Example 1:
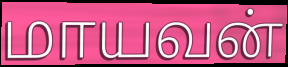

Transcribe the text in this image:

மாயவன்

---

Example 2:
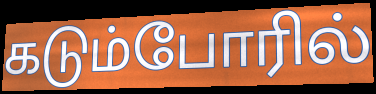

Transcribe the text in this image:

கடும்போரில்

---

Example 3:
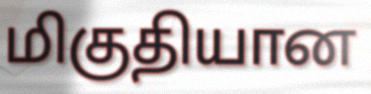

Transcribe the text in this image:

மிகுதியான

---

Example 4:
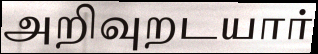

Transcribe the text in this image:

அறிவுறடயார்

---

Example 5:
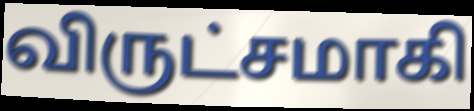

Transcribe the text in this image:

விருட்சமாகி